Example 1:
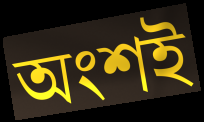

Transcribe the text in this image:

অংশই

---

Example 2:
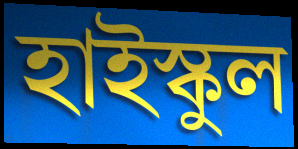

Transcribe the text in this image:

হাইস্কুল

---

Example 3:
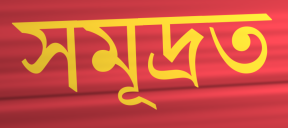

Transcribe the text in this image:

সমূদ্ৰত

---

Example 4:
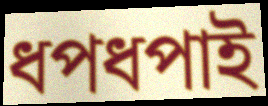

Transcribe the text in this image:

ধপধপাই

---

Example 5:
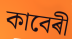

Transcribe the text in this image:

কাবেৰী